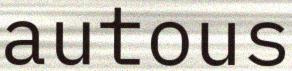
autous